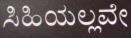
ಸಿಹಿಯಲ್ಲವೇ